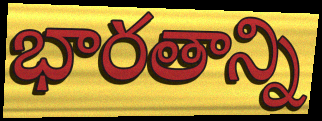
భారతాన్ని